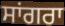
ਸਾਂਗਰਾ